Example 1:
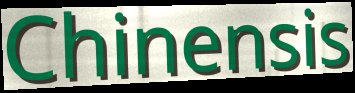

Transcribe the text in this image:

Chinensis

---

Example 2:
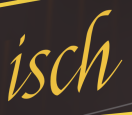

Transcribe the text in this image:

isch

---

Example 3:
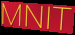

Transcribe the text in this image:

MNIT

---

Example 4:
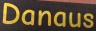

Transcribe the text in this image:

Danaus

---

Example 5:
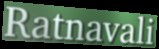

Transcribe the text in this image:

Ratnavali